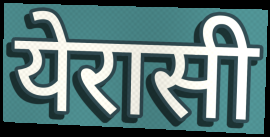
येरासी